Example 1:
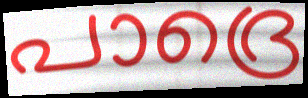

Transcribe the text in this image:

പാദ്രെ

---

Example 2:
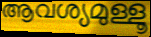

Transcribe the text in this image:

ആവശ്യമുള്ളൂ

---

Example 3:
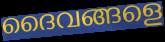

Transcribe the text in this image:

ദൈവങ്ങളെ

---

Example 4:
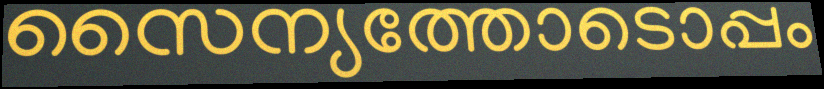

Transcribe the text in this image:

സൈന്യത്തോടൊപ്പം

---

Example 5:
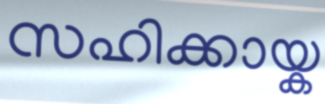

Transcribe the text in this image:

സഹിക്കായ്ക